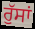
ਰੁੱਸਾਂ